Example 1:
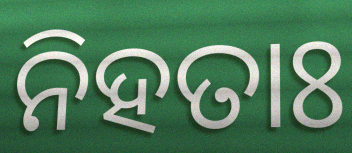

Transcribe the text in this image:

ନିହତାଃ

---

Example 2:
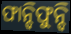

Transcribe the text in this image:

ଫାନ୍ଦିଫୁନ୍ଦି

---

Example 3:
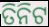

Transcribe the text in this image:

ତିନିଟ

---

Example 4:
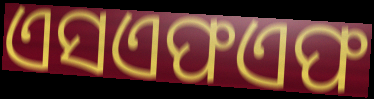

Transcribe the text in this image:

ଏସଏଫଏଫ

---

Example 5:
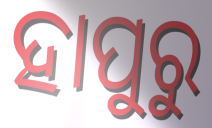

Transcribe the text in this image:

ହାପୁରୁ